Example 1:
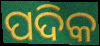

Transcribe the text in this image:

ପଦିକ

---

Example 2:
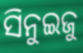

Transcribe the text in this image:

ସିନୁଇଜୁ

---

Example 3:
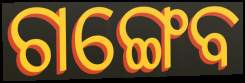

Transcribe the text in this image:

ଗଙ୍ଗେବ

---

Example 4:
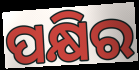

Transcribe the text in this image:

ପକ୍ଷିର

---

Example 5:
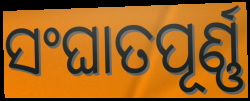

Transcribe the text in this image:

ସଂଘାତପୂର୍ଣ୍ଣ